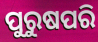
ପୁରୁଷପରି